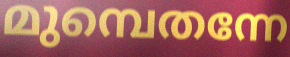
മുമ്പെതന്നേ